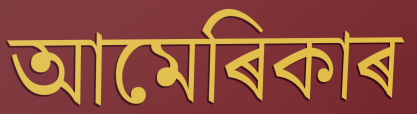
আমেৰিকাৰ